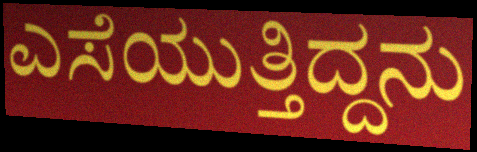
ಎಸೆಯುತ್ತಿದ್ದನು